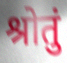
श्रोतुं